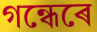
গন্ধেৰে